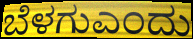
ಬೆಳಗುಎಂದು